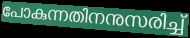
പോകുന്നതിനനുസരിച്ച്